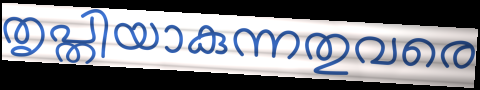
തൃപ്തിയാകുന്നതുവരെ